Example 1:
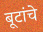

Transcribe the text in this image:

बूटांचे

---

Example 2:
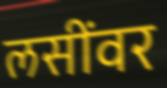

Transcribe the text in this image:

लसींवर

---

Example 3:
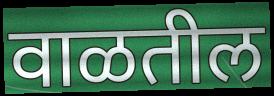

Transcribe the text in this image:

वाळतील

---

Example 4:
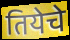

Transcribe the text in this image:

तियेचे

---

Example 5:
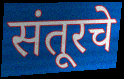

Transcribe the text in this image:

संतूरचे